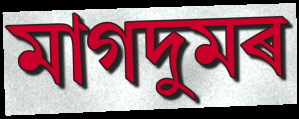
মাগদুমৰ